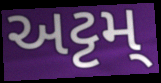
અટ્ટમ્